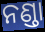
ନଣ୍ଡା